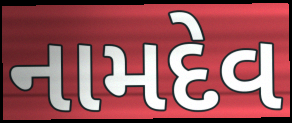
નામદેવ